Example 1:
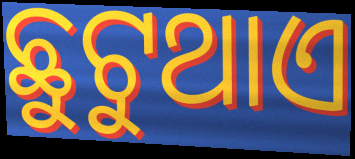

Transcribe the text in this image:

ଛୁଟୁଥାଏ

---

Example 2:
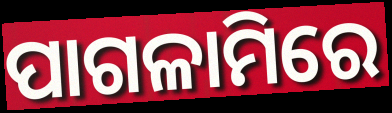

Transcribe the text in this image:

ପାଗଳାମିରେ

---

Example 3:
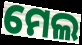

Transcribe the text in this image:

ମେଲ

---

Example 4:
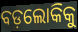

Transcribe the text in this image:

ବଡ଼ଲୋକିକୁ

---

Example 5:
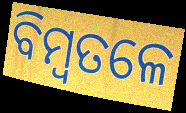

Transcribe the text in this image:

ବିମ୍ବତଳେ